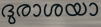
ദുരാശയാ